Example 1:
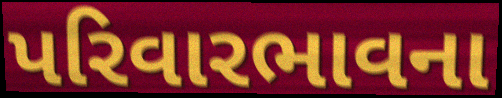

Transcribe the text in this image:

પરિવારભાવના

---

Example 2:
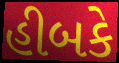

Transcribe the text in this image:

હીબકે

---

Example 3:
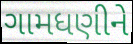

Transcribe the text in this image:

ગામધણીને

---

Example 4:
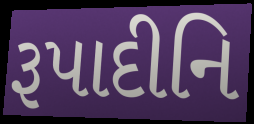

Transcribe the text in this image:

રૂપાદીનિ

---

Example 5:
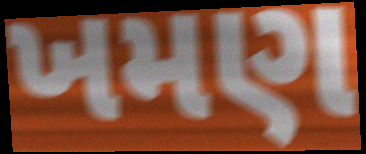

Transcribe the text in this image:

ખમણ